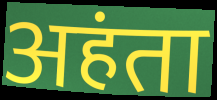
अहंता